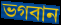
ভগবান